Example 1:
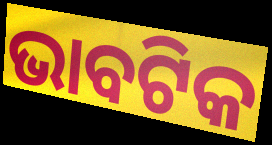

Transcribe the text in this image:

ଭାବଟିକ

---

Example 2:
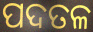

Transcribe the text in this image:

ପଦତଳ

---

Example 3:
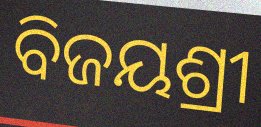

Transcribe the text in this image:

ବିଜୟଶ୍ରୀ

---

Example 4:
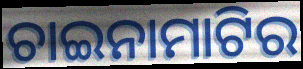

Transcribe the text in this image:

ଚାଇନାମାଟିର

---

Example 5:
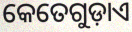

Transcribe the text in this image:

କେତେଗୁଡ଼ାଏ